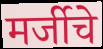
मर्जीचे